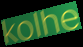
kolhe